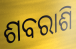
ଶବରାଶି